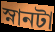
স্নানটা